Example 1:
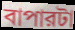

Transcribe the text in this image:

বাপারটা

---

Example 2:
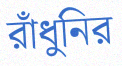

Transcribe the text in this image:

রাঁধুনির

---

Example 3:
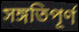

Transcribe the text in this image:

সঙ্গতিপূর্ণ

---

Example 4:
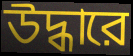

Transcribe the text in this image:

উদ্ধারে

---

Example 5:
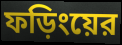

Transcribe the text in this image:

ফড়িংয়ের